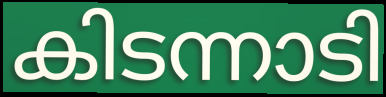
കിടന്നാടി